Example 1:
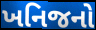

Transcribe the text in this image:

ખનિજનો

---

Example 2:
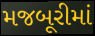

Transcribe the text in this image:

મજબૂરીમાં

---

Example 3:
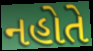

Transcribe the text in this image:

નહોતે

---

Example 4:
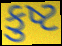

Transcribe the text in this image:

કુષ્ટ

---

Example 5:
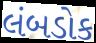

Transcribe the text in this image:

લંબડોક